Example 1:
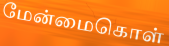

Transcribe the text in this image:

மேன்மைகொள்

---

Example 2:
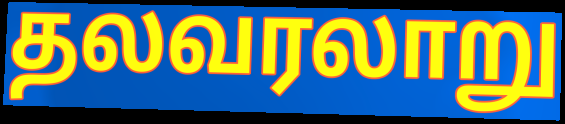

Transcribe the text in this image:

தலவரலாறு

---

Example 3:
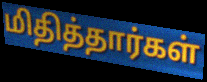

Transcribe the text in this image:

மிதித்தார்கள்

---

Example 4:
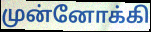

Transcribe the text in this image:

முன்னோக்கி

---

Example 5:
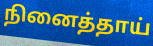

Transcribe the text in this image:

நினைத்தாய்